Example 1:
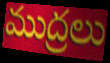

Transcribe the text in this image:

ముద్రలు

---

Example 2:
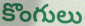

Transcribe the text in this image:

కొంగులు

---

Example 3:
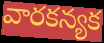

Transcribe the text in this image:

వారకన్యక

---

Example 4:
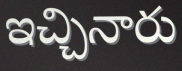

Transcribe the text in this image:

ఇచ్చినారు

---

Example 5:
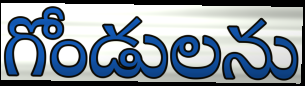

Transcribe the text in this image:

గోండులను